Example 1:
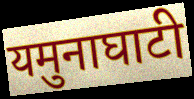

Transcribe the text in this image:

यमुनाघाटी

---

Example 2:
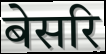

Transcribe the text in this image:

बेसरि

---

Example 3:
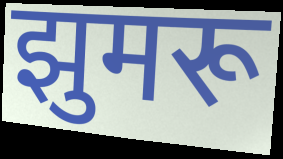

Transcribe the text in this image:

झुमरू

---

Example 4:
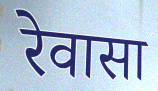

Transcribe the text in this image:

रेवासा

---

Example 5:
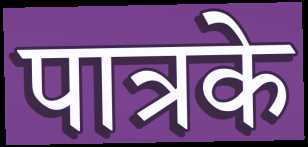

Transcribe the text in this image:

पात्रके